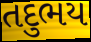
તદુભય